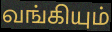
வங்கியும்